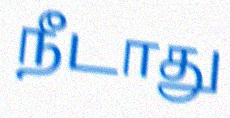
நீடாது